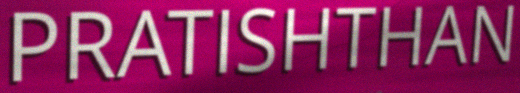
PRATISHTHAN